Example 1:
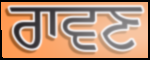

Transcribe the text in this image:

ਰਾਵਣ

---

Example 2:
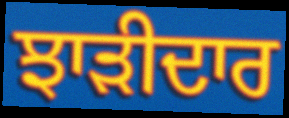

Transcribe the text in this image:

ਝਾੜੀਦਾਰ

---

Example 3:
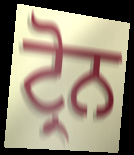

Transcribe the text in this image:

ਟ੍ਰੋਨ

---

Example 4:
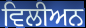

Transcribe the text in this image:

ਵਿਲੀਅਨ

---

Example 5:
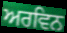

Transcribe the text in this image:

ਅਰਵਿਨ